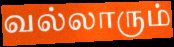
வல்லாரும்